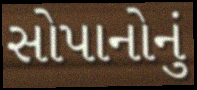
સોપાનોનું